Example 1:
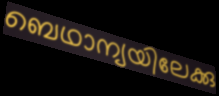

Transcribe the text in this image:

ബെഥാന്യയിലേക്കു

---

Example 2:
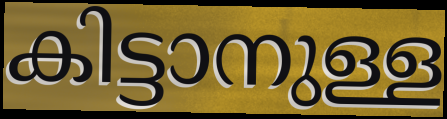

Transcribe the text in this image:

കിട്ടാനുള്ള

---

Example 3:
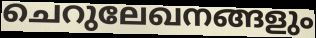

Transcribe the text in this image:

ചെറുലേഖനങ്ങളും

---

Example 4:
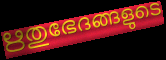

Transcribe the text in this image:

ഋതുഭേദങ്ങളുടെ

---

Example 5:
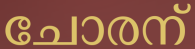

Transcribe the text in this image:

ചോരന്